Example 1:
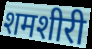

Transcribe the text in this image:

शमशीरी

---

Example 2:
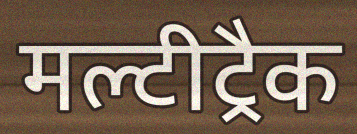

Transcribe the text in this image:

मल्टीट्रैक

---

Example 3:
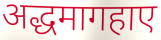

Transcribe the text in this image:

अद्धमागहाए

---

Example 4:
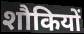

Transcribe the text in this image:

शौकियों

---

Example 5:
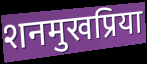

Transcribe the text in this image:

शनमुखप्रिया